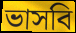
ভাসবি